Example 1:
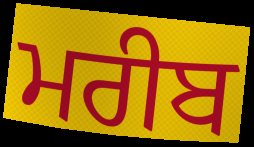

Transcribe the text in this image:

ਮਰੀਬ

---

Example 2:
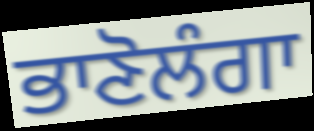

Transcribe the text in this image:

ਭਾਣੋਲੰਗਾ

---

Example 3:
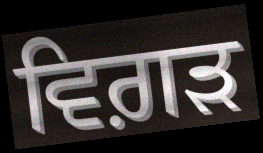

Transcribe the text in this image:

ਵਿਗ਼ੜ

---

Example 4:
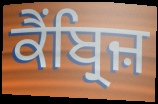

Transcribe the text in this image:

ਕੈਂਬ੍ਰਿਜ਼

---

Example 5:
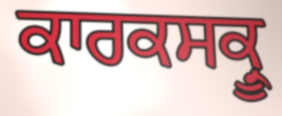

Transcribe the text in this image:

ਕਾਰਕਸਕ੍ਰੂ